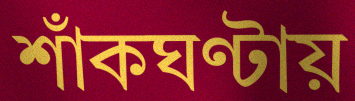
শাঁকঘণ্টায়